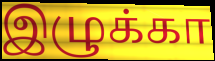
இழுக்கா